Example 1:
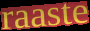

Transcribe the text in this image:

raaste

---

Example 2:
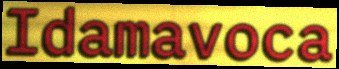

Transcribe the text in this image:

Idamavoca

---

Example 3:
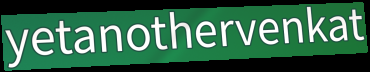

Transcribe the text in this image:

yetanothervenkat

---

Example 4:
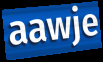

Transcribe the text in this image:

aawje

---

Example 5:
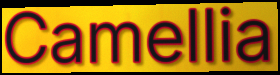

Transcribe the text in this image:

Camellia